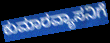
ಕುಮಾರವ್ಯಾಸನಿಗೆ